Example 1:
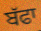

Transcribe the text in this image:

ਬੱਫਾ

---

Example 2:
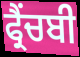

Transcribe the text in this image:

ਫ੍ਰੈਂਚਬੀ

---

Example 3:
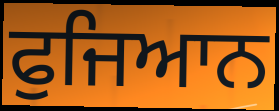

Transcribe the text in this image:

ਫੁਜਿਆਨ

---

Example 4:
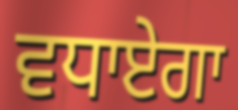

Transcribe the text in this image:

ਵਧਾਏਗਾ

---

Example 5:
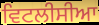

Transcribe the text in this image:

ਵਿਟਲੀਸੀਆ